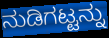
ನುಡಿಗಟ್ಟನ್ನು